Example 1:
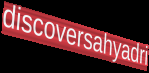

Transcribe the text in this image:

discoversahyadri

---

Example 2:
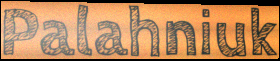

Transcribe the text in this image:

Palahniuk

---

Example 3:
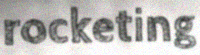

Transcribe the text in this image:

rocketing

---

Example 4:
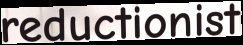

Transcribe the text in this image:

reductionist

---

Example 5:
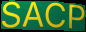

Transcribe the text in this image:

SACP